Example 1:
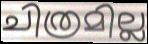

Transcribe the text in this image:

ചിത്രമില്ല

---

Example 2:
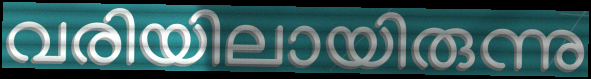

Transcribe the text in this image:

വരിയിലായിരുന്നു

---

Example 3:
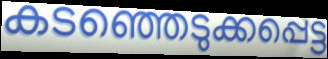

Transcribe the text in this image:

കടഞ്ഞെടുക്കപ്പെട്ട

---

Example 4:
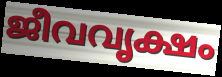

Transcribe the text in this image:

ജീവവൃക്ഷം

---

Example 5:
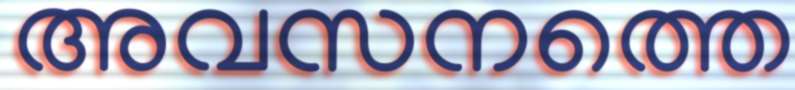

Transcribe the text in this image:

അവസനത്തെ